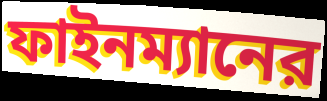
ফাইনম্যানের